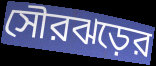
সৌরঝড়ের